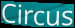
Circus